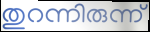
തുറന്നിരുന്ന്